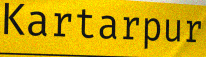
Kartarpur